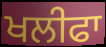
ਖਲੀਫਾ